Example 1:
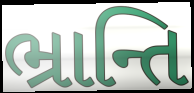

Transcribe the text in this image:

ભ્રાન્તિ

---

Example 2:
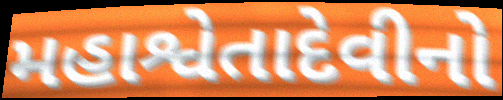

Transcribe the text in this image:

મહાશ્વેતાદેવીનો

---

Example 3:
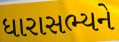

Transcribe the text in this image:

ધારાસભ્યને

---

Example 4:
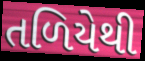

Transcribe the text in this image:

તળિયેથી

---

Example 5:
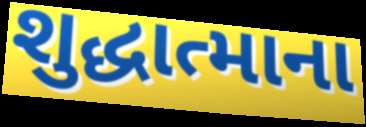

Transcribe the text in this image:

શુદ્ધાત્માના